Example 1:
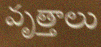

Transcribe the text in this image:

వృత్తాలు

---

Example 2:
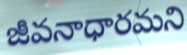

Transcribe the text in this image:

జీవనాధారమని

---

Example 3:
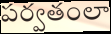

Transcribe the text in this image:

పర్వతంలా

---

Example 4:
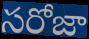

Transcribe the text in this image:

సరోజా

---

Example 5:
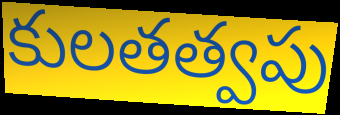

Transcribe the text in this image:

కులతత్వపు